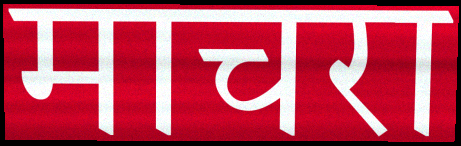
माचरा